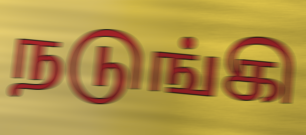
நடுங்கி